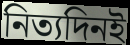
নিত্যদিনই